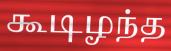
கூடிழந்த